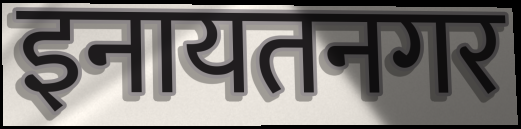
इनायतनगर